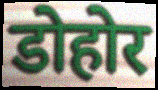
डोहोर